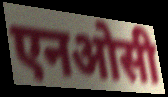
एनओसी